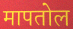
मापतोल